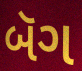
બૅગ